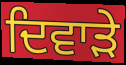
ਦਿਵਾੜੇ